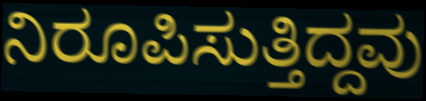
ನಿರೂಪಿಸುತ್ತಿದ್ದವು